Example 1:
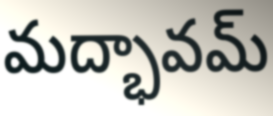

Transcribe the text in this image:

మద్భావమ్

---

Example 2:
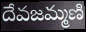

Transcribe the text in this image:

దేవజమ్మణి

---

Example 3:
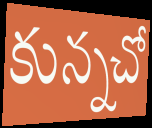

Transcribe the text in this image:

కున్నచో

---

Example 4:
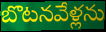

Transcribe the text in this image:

బొటనవేళ్లను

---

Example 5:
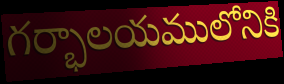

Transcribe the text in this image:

గర్భాలయములోనికి